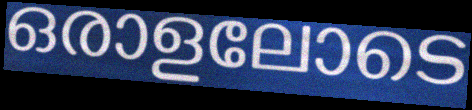
ഒരാളലോടെ